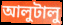
আলুটালু